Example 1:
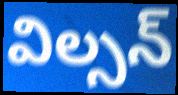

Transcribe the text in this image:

విల్సన్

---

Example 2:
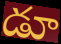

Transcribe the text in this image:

డూ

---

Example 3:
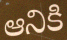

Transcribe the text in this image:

ఆనికి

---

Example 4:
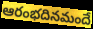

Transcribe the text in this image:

ఆరంభదినమందే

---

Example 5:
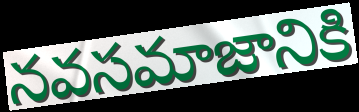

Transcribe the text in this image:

నవసమాజానికి